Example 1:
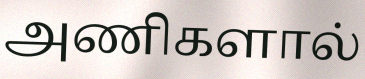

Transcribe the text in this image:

அணிகளால்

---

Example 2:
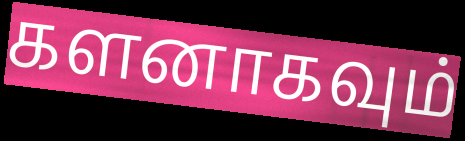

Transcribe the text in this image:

களனாகவும்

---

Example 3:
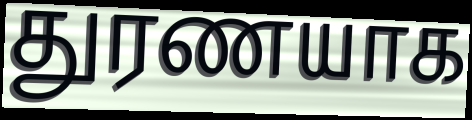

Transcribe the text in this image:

துரணயாக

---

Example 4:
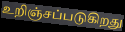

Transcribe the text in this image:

உறிஞ்சப்படுகிறது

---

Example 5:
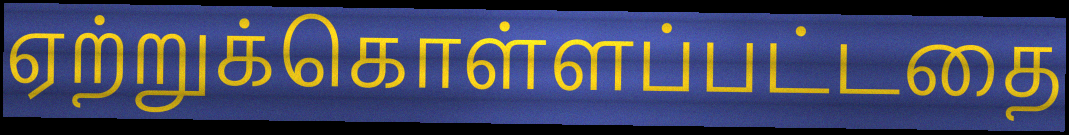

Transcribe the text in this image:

ஏற்றுக்கொள்ளப்பட்டதை